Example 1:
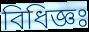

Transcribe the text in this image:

বিধিজ্ঞঃ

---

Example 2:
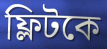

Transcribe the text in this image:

ফ্লিটকে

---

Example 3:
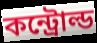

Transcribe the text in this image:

কন্ট্রোল্ড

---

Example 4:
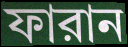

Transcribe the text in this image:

ফারান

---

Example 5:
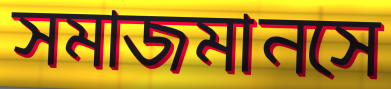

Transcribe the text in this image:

সমাজমানসে